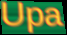
Upa